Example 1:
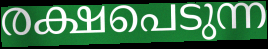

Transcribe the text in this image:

രക്ഷപെടുന്ന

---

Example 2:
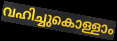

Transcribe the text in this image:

വഹിച്ചുകൊള്ളാം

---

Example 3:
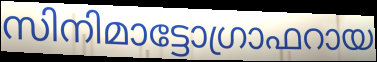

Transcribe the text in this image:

സിനിമാട്ടോഗ്രാഫറായ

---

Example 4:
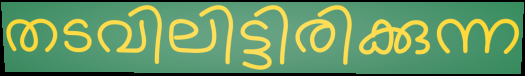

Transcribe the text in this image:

തടവിലിട്ടിരിക്കുന്ന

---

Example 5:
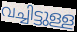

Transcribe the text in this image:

വച്ചിട്ടുള്ള